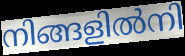
നിങ്ങളിൽനി